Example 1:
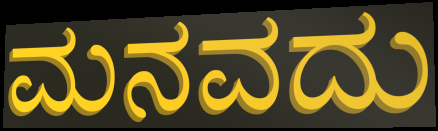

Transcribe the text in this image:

ಮನವದು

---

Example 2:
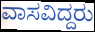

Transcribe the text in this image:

ವಾಸವಿದ್ದರು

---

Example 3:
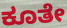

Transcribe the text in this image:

ಕೂತೇ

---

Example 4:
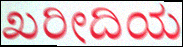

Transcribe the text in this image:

ಖರೀದಿಯ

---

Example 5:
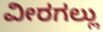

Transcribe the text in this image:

ವೀರಗಲ್ಲು